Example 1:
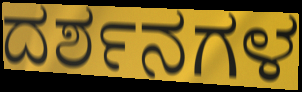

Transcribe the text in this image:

ದರ್ಶನಗಳ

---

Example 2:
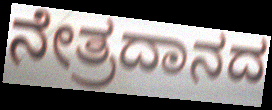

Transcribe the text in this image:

ನೇತ್ರದಾನದ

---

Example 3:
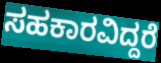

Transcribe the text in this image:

ಸಹಕಾರವಿದ್ದರೆ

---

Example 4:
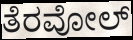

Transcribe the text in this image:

ತೆರವೋಲ್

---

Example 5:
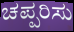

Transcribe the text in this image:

ಚಪ್ಪರಿಸು